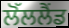
ਲੋੱਲਲੈਂਡ